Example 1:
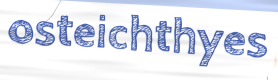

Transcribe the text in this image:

osteichthyes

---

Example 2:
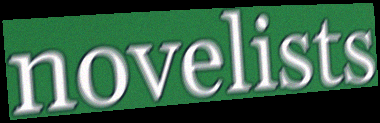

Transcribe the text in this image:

novelists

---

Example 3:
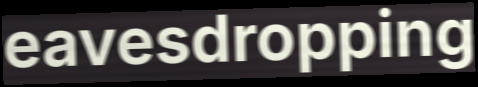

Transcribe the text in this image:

eavesdropping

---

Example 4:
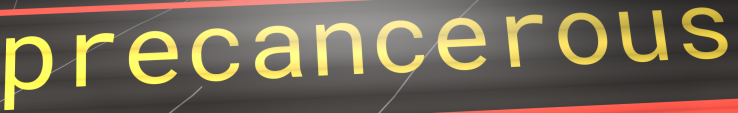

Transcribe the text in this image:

precancerous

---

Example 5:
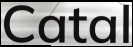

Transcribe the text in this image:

Catal